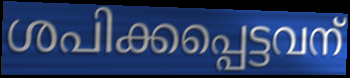
ശപിക്കപ്പെട്ടവന്